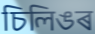
চিলিঙৰ